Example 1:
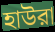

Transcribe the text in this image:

হাউরা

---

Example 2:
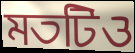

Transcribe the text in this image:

মতটিও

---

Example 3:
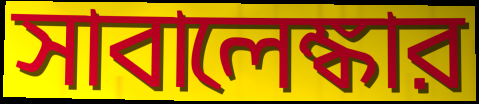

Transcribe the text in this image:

সাবালেঙ্কার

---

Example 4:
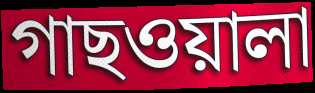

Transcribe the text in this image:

গাছওয়ালা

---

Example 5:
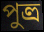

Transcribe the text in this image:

পুত্ত্র